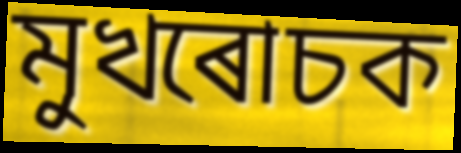
মুখৰোচক